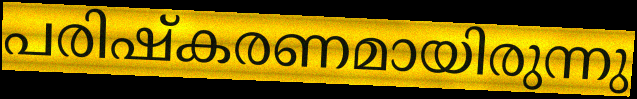
പരിഷ്കരണമായിരുന്നു